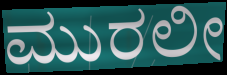
ಮುರಲೀ